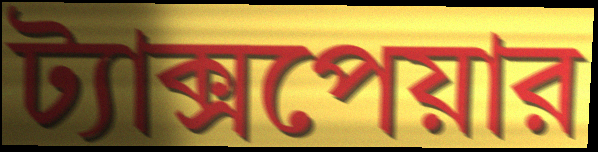
ট্যাক্সপেয়ার